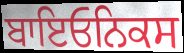
ਬਾਇਓਨਿਕਸ